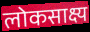
लोकसाक्ष्य